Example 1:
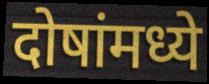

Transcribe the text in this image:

दोषांमध्ये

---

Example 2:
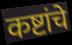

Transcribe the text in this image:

कष्टांचे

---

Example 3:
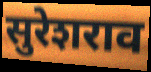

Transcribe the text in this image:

सुरेशराव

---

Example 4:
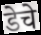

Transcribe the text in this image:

डेचे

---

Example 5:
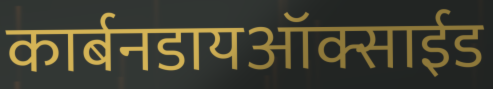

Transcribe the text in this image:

कार्बनडायऑक्साईड